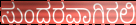
ಸುಂದರವಾಗಿರಲಿ